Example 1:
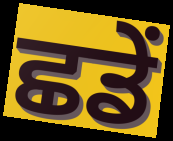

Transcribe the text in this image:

ਛਡੇਂ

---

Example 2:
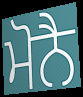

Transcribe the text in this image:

ਮੋਨੈ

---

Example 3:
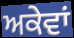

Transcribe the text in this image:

ਅਕੇਵਾਂ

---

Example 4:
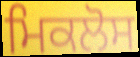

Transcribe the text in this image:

ਮਿਕਲੋਸ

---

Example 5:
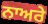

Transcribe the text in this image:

ਨਾਅਰੇ